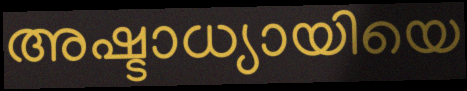
അഷ്ടാധ്യായിയെ